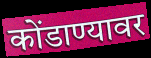
कोंडाण्यावर